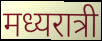
मध्यरात्री